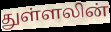
துள்ளலின்